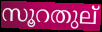
സൂറതുല്